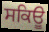
ਸਕਿਊ